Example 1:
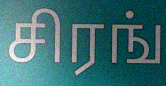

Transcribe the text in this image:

சிரங்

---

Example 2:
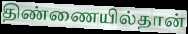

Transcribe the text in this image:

திண்ணையில்தான்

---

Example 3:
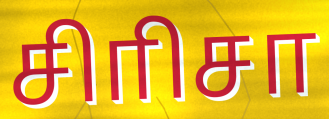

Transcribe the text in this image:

சிரிசா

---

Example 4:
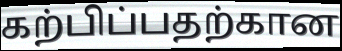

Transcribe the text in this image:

கற்பிப்பதற்கான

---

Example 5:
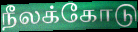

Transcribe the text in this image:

நீலக்கோடு